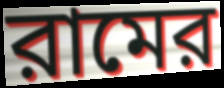
রামের